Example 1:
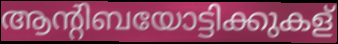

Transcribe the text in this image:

ആന്റിബയോട്ടിക്കുകള്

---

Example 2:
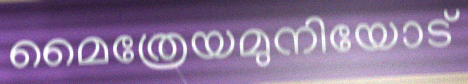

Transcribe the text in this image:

മൈത്രേയമുനിയോട്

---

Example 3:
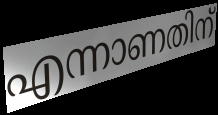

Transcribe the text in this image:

എന്നാണതിന്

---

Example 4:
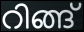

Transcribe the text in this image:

റിങ്ങ്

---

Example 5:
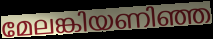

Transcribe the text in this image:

മേലങ്കിയണിഞ്ഞ